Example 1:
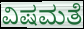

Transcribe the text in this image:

ವಿಷಮತೆ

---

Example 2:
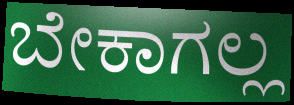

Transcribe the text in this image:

ಬೇಕಾಗಲ್ಲ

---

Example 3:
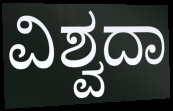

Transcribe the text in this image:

ವಿಶ್ವದಾ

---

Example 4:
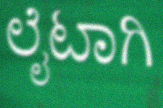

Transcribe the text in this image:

ಲೈಟಾಗಿ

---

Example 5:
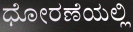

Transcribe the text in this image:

ಧೋರಣೆಯಲ್ಲಿ